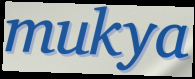
mukya